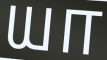
யா